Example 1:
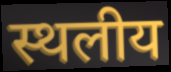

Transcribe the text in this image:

स्थलीय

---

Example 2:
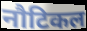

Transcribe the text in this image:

नौटिकल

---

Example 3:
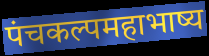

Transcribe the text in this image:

पंचकल्पमहाभाष्य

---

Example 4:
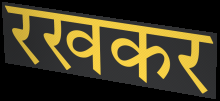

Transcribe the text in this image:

रखकर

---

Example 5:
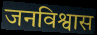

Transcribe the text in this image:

जनविश्वास